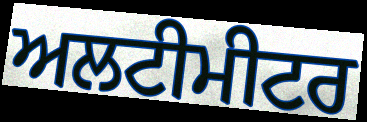
ਅਲਟੀਮੀਟਰ